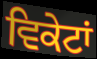
ਵਿਕੇਟਾਂ